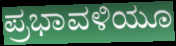
ಪ್ರಭಾವಳಿಯೂ